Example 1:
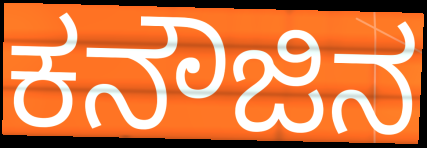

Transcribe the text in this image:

ಕನೌಜಿನ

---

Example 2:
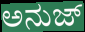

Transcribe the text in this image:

ಅನುಜ್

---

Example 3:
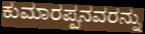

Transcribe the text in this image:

ಕುಮಾರಪ್ಪನವರನ್ನು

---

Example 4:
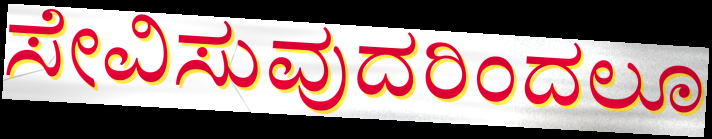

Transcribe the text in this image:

ಸೇವಿಸುವುದರಿಂದಲೂ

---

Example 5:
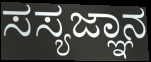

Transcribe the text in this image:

ಸಸ್ಯಜ್ಞಾನ